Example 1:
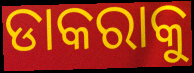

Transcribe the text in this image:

ଡାକରାକୁ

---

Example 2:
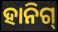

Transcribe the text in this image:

ହାନିଗ୍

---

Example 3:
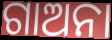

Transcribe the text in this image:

ଗାଅନା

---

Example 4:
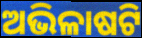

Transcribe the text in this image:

ଅଭିଳାଷଟି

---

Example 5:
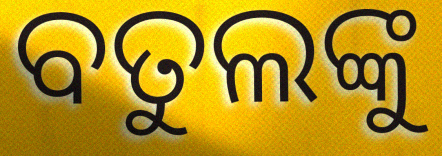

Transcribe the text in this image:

ବତୁଲଙ୍କୁ